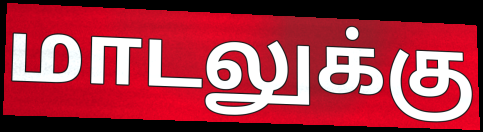
மாடலுக்கு